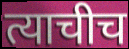
त्याचीच